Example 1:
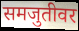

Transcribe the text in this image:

समजुतीवर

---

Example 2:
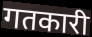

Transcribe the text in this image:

गतकारी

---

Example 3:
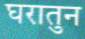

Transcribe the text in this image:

घरातुन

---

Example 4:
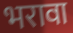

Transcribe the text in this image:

भरावा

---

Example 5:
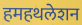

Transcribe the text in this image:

हमहथलेशन